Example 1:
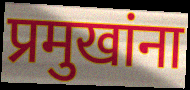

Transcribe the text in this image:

प्रमुखांना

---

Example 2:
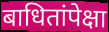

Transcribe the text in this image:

बाधितांपेक्षा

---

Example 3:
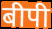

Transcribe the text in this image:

बीपी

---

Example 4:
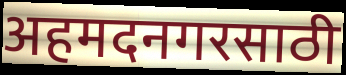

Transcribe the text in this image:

अहमदनगरसाठी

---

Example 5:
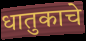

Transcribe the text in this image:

धातुकाचे